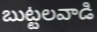
బుట్టలవాడి